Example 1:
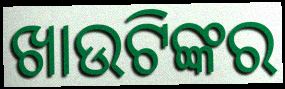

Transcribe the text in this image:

ଖାଉଟିଙ୍କର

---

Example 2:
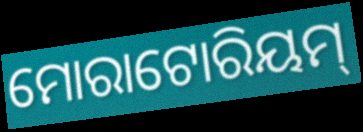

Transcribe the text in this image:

ମୋରାଟୋରିୟମ୍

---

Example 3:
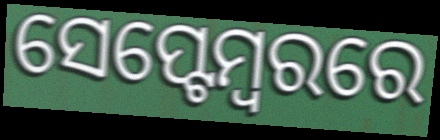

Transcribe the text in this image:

ସେପ୍ଟେମ୍ୱରରେ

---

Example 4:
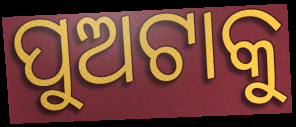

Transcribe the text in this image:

ପୁଅଟାକୁ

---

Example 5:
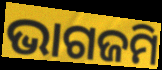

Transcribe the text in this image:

ଭାଗଜମି